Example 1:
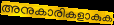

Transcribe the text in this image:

അനുകാരികളാകുക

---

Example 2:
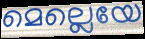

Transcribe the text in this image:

മെല്ലെയേ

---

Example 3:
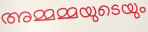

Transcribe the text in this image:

അമ്മമ്മയുടെയും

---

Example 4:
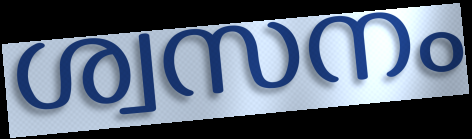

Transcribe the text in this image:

ശ്വസനം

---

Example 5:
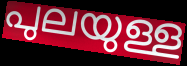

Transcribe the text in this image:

പുലയുള്ള